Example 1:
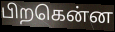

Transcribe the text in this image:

பிறகென்ன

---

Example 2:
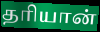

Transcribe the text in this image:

தரியான்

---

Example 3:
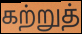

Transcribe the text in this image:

கற்றுத்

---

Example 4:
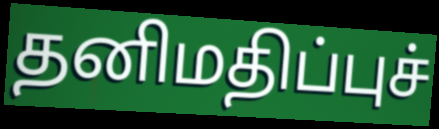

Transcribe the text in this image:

தனிமதிப்புச்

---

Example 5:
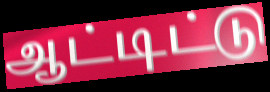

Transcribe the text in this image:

ஆட்டிட்டு